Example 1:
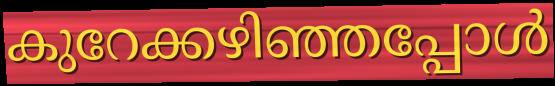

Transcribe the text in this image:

കുറേക്കഴിഞ്ഞപ്പോൾ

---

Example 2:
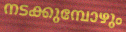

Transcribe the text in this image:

നടക്കുമ്പോഴും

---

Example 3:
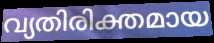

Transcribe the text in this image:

വ്യതിരിക്തമായ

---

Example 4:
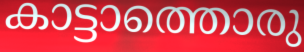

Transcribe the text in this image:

കാട്ടാത്തൊരു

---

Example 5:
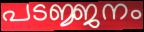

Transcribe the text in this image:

പടജ്ജനം